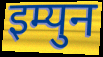
इम्युन